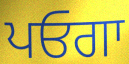
ਪਓਗਾ